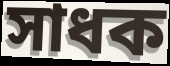
সাধক